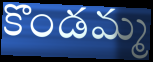
కొండమ్మ